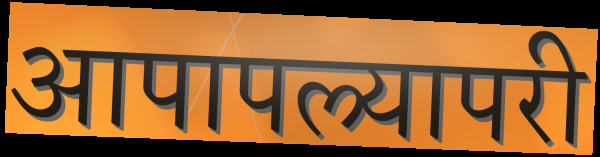
आपापल्यापरी